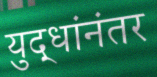
युद्धांनंतर